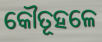
କୌତୂହଳେ